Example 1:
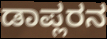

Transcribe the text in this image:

ಡಾಪ್ಲರನ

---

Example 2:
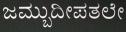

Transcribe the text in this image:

ಜಮ್ಬುದೀಪತಲೇ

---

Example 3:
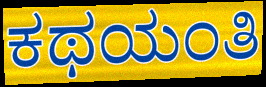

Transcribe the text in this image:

ಕಥಯಂತಿ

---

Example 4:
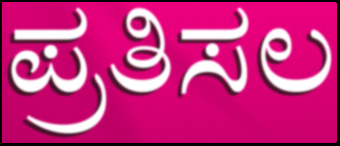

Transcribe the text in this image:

ಪ್ರತಿಸಲ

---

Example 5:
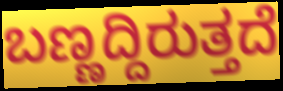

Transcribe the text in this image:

ಬಣ್ಣದ್ದಿರುತ್ತದೆ